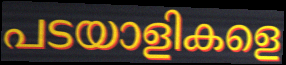
പടയാളികളെ